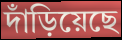
দাঁড়িয়েছে